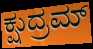
ಕ್ಷುದ್ರಮ್